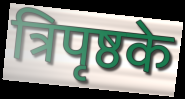
त्रिपृष्ठके